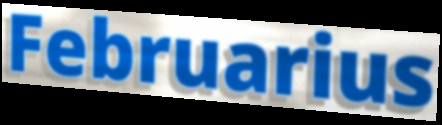
Februarius